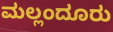
ಮಲ್ಲಂದೂರು